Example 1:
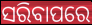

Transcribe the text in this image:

ସରିବାପରେ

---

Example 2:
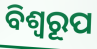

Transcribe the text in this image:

ବିଶ୍ୱରୂପ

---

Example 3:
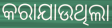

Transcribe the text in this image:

କରାଯାଉଥିଲା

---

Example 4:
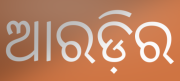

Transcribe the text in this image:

ଆରଡ଼ିର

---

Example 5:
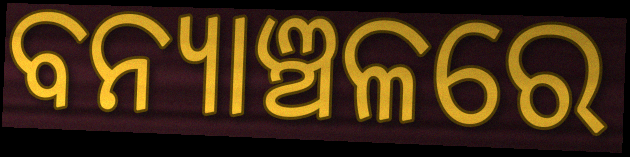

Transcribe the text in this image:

ବନ୍ୟାଞ୍ଚଳରେ